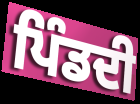
ਪਿੰਡਦੀ